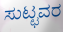
ಸುಟ್ಟವರ